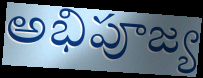
అభిపూజ్య